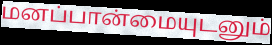
மனப்பான்மையுடனும்